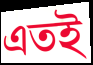
এতই